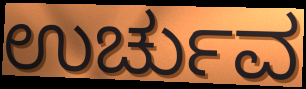
ಉರ್ಚುವ